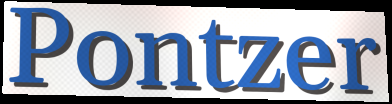
Pontzer